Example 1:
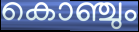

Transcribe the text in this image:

കൊഞ്ചും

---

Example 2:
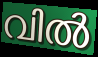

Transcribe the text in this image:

വിൽ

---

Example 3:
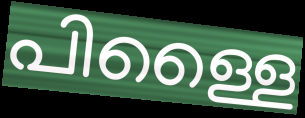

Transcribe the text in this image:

പിള്ളൈ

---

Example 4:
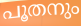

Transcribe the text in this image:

പൂതനും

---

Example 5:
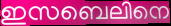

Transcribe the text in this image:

ഇസബെലിനെ